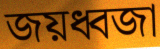
জয়ধ্বজা